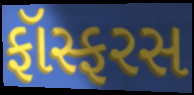
ફૉસ્ફરસ